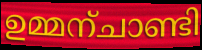
ഉമ്മന്ചാണ്ടി